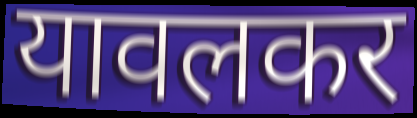
यावलकर